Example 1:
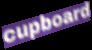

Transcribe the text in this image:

cupboard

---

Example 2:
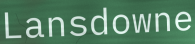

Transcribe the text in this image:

Lansdowne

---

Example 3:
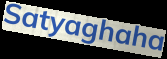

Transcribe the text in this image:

Satyaghaha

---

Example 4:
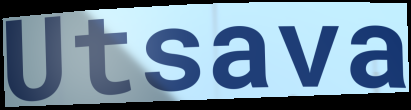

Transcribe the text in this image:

Utsava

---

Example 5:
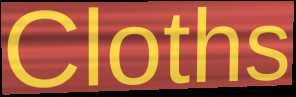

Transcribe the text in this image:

Cloths